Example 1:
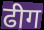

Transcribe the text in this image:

ढीग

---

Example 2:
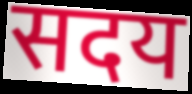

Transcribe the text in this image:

सदय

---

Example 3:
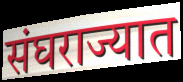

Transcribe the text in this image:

संघराज्यात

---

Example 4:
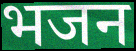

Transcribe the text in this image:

भजन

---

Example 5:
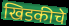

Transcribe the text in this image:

खिडकीचे